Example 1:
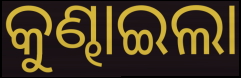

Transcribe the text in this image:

କୁଣ୍ଢାଇଲା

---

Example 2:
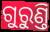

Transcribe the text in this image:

ଗୁରୁଣ୍ତି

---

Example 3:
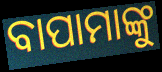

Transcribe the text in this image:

ବାପାମାଙ୍କୁ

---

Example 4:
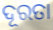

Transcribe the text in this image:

ଦୂରତା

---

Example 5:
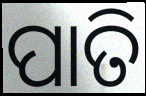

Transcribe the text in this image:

ପାତି